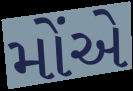
મોંએ